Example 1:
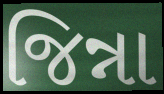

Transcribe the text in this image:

જિન્ના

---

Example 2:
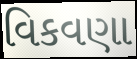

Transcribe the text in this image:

વિકવણા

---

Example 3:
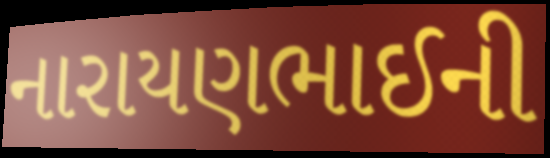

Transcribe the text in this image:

નારાયણભાઈની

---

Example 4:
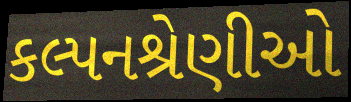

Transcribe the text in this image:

કલ્પનશ્રેણીઓ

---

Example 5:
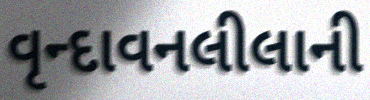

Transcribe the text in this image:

વૃન્દાવનલીલાની